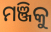
ମଞ୍ଜିକୁ